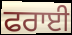
ਫਰਾਈ